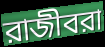
রাজীবরা